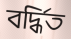
বৰ্দ্ধিত